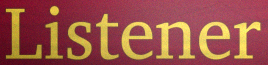
Listener